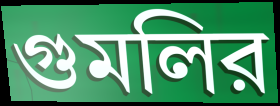
গুমলির